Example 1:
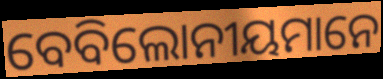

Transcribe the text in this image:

ବେବିଲୋନୀୟମାନେ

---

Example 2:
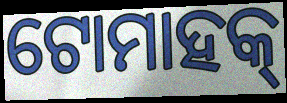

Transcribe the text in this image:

ଟୋମାହକ୍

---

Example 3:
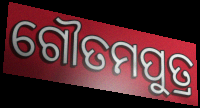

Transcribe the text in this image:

ଗୌତମପୁତ୍ର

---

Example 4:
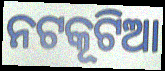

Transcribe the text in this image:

ନଟକୂଟିଆ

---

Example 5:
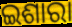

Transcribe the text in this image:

ଇଶାରା